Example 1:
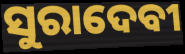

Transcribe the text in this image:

ସୁରାଦେବୀ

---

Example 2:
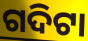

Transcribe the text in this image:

ଗଦିଟା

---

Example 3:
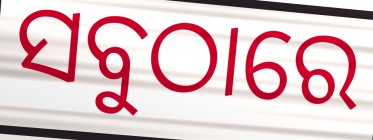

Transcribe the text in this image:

ସବୁଠାରେ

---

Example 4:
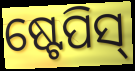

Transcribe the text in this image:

ଷ୍ଟେପିସ୍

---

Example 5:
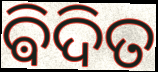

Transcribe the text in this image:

ଵିଦିତ